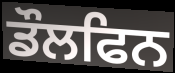
ਡੌਲਫਿਨ